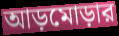
আড়মোড়ার